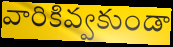
వారికివ్వకుండా